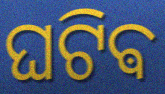
ଘଟିଵ